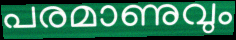
പരമാണുവും